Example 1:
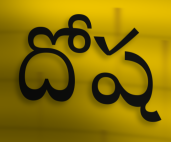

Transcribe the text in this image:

దోష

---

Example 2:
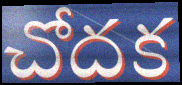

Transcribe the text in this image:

చోదక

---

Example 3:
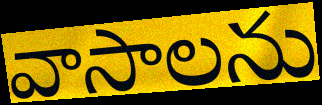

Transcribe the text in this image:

వాసాలను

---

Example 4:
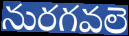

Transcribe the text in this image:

నురగవలె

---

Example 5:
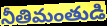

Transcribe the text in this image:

నీతిమంతుడి